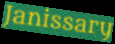
Janissary